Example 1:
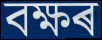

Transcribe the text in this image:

বক্ষৰ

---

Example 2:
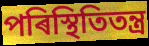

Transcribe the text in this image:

পৰিস্থিতিতন্ত্ৰ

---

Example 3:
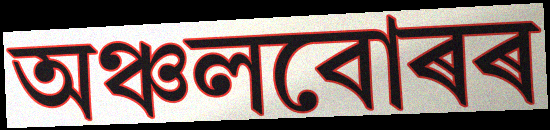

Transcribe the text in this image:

অঞ্চলবোৰৰ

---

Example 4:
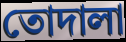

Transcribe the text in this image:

তোদালা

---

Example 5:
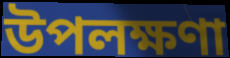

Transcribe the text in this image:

উপলক্ষণা